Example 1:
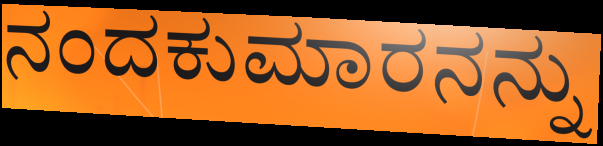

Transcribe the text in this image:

ನಂದಕುಮಾರನನ್ನು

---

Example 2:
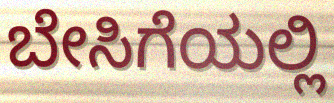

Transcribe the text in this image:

ಬೇಸಿಗೆಯಲ್ಲಿ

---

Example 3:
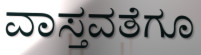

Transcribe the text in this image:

ವಾಸ್ತವತೆಗೂ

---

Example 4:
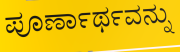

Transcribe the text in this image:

ಪೂರ್ಣಾರ್ಥವನ್ನು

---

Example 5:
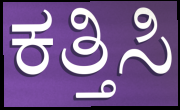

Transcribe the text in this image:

ಕತ್ತಿಸಿ